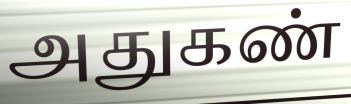
அதுகண்